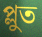
প্লুত